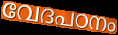
വേദപഠനം